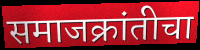
समाजक्रांतीचा